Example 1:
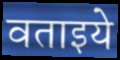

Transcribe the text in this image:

वताइये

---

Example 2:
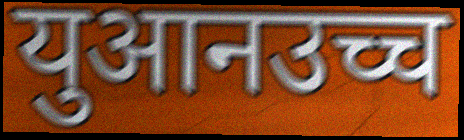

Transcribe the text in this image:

युआनउच्च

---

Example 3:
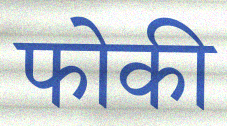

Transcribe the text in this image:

फोकी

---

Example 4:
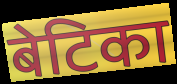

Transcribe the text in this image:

बेटिका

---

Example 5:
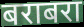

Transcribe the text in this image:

बराबरा